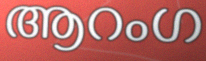
ആറംഗ